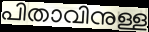
പിതാവിനുള്ള